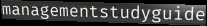
managementstudyguide